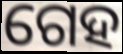
ଗେହ